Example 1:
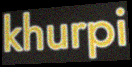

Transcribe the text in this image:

khurpi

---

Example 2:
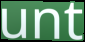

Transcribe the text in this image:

unt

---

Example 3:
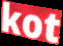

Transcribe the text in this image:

kot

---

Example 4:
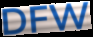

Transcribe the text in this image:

DFW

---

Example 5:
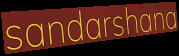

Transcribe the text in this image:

sandarshana